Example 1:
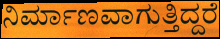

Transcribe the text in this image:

ನಿರ್ಮಾಣವಾಗುತ್ತಿದ್ದರೆ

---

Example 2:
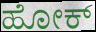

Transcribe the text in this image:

ಹೋಕ್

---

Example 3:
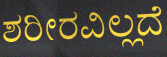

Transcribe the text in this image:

ಶರೀರವಿಲ್ಲದೆ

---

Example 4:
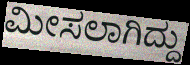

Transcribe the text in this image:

ಮೀಸಲಾಗಿದ್ದು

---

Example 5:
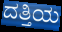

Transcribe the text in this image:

ದತ್ತಿಯ